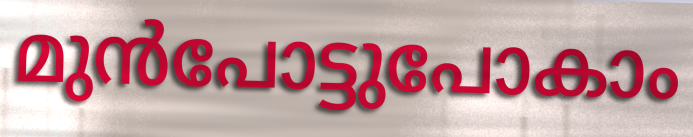
മുൻപോട്ടുപോകാം